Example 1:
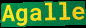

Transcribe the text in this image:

Agalle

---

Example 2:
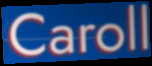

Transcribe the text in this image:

Caroll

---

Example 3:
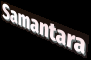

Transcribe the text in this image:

Samantara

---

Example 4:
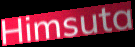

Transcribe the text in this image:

Himsuta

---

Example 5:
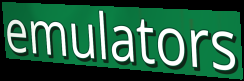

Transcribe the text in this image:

emulators